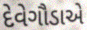
દેવેગૌડાએ